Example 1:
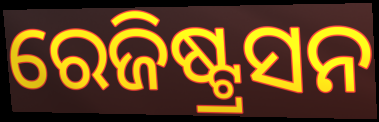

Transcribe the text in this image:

ରେଜିଷ୍ଟ୍ରସନ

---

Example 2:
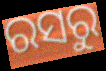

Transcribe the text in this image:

ରସରୁ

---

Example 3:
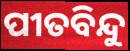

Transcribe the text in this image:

ପୀତବିନ୍ଦୁ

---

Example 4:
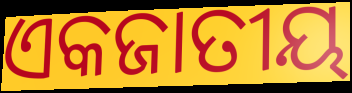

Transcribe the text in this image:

ଏକଜାତୀୟ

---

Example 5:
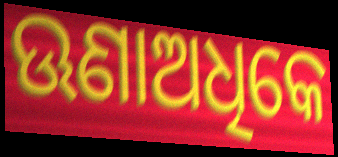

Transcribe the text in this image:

ଊଣାଅଧିକେ